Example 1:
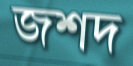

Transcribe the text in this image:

জশদ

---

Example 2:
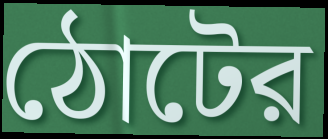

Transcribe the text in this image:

ঠোটের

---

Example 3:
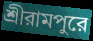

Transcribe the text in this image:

শ্রীরামপুরে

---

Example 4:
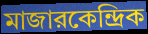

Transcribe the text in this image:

মাজারকেন্দ্রিক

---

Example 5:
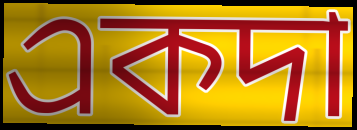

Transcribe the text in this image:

একদা